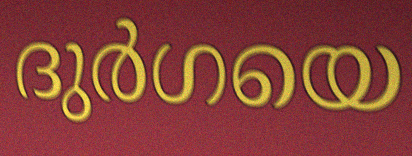
ദുർഗയെ